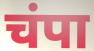
चंपा